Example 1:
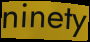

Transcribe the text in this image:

ninety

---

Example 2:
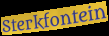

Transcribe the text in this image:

Sterkfontein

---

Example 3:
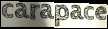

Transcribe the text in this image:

carapace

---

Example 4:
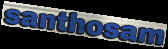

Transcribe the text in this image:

santhosam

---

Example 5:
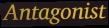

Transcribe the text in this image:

Antagonist